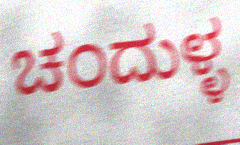
ಚಂದುಳ್ಳ